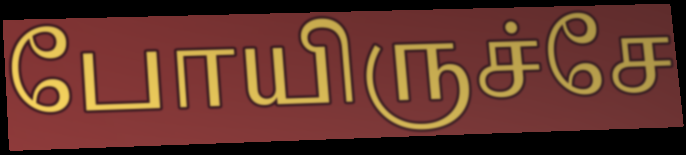
போயிருச்சே